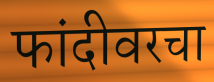
फांदीवरचा